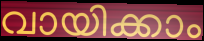
വായിക്കാം